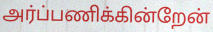
அர்ப்பணிக்கின்றேன்